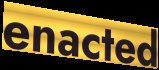
enacted